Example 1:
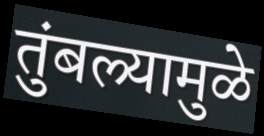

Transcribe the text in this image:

तुंबल्यामुळे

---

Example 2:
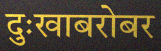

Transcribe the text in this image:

दुःखाबरोबर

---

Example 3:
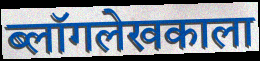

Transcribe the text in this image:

ब्लॉगलेखकाला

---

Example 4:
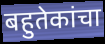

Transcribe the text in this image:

बहुतेकांचा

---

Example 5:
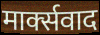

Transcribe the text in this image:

मार्क्‍सवाद